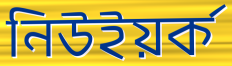
নিউইয়ৰ্ক